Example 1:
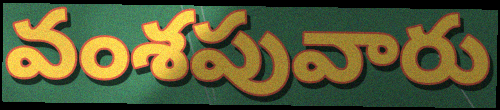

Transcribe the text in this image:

వంశపువారు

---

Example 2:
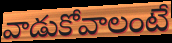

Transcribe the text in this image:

వాడుకోవాలంటే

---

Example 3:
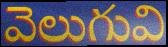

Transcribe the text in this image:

వెలుగువి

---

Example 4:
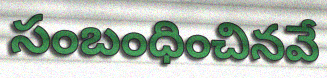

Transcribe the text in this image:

సంబంధించినవే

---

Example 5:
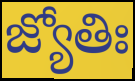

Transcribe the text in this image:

జ్యోతిః